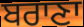
ਬਰਾਣਾ